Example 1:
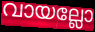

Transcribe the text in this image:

വായല്ലോ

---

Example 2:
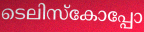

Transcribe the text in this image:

ടെലിസ്കോപ്പോ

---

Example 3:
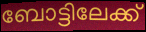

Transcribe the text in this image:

ബോട്ടിലേക്ക്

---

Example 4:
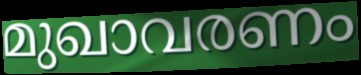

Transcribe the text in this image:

മുഖാവരണം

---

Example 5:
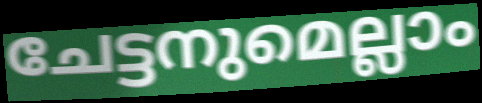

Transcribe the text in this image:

ചേട്ടനുമെല്ലാം